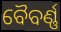
ବୈବର୍ଣ୍ଣ